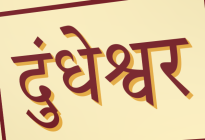
दुंधेश्वर